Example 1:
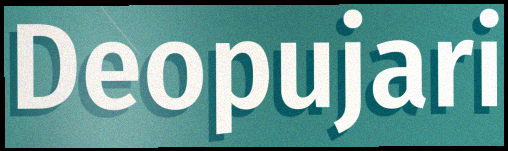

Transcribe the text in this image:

Deopujari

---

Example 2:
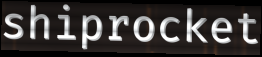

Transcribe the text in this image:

shiprocket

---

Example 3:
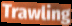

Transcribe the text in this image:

Trawling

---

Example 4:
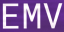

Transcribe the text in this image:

EMV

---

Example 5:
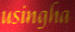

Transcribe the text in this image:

usingha